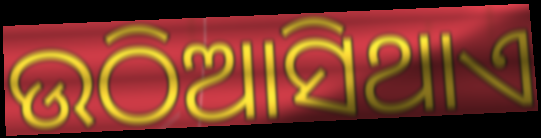
ଉଠିଆସିଥାଏ